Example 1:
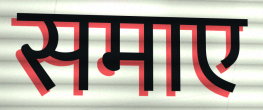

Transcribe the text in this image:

समाए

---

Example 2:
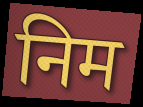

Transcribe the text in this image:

निम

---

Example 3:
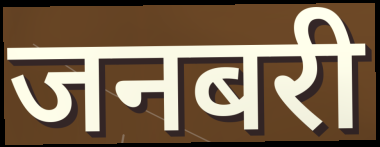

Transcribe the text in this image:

जनबरी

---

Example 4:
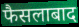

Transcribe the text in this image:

फैसलाबाद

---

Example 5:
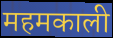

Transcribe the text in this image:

महमकाली